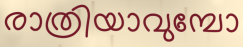
രാത്രിയാവുമ്പോ